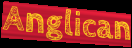
Anglican